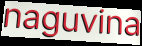
naguvina